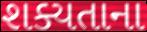
શક્યતાના